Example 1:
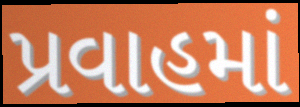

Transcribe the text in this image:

પ્રવાહમાં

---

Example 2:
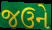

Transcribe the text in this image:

જઉને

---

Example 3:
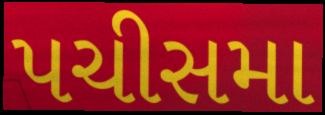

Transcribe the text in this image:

પચીસમા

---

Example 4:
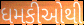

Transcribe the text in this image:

ધમકીઓથી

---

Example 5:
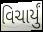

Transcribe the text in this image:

વિચાર્યું